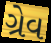
ગ્રેવ